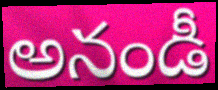
అనండీ